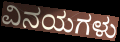
ವಿನಯಗಳು